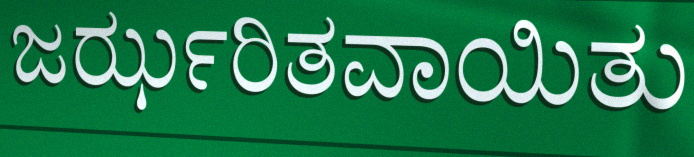
ಜರ್ಝರಿತವಾಯಿತು